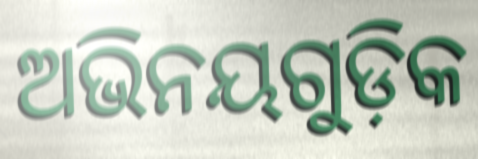
ଅଭିନୟଗୁଡ଼ିକ